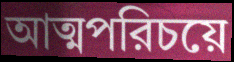
আত্মপরিচয়ে